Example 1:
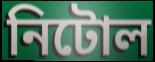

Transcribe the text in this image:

নিটোল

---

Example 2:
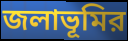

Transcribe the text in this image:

জলাভূমির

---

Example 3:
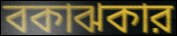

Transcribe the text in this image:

বকাঝকার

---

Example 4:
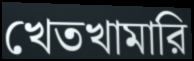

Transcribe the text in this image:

খেতখামারি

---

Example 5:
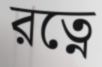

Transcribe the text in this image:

রত্নে